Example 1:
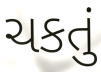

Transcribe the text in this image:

ચકતું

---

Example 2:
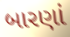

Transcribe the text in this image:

બારણાં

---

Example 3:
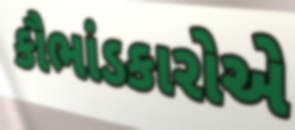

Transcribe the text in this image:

કૌભાંડકારોએ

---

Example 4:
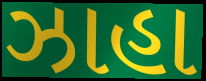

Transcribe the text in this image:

ઝાહા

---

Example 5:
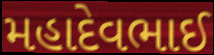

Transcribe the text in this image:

મહાદેવભાઈ